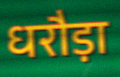
धरौड़ा